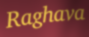
Raghava